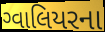
ગ્વાલિયરના